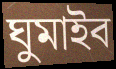
ঘুমাইব